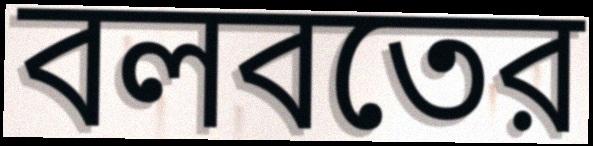
বলবতের